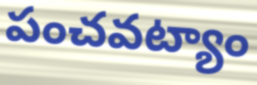
పంచవట్యాం